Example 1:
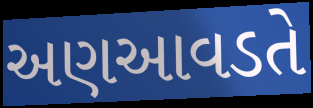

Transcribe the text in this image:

અણઆવડતે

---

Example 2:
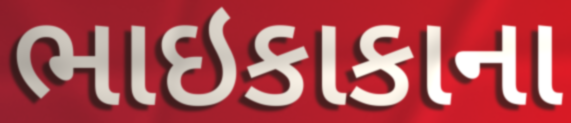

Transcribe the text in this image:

ભાઇકાકાના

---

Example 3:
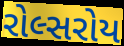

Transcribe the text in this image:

રોલ્સરોય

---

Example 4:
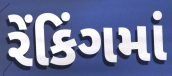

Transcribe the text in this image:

રેંકિંગમાં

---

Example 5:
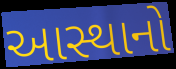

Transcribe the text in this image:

આસ્થાનો